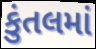
કુંતલમાં